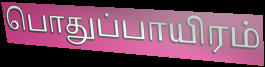
பொதுப்பாயிரம்